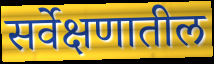
सर्वेक्षणातील